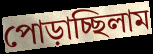
পোড়াচ্ছিলাম